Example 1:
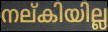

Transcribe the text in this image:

നല്കിയില്ല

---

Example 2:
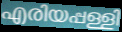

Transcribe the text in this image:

എരിയപ്പള്ളി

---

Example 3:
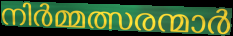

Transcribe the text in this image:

നിർമ്മത്സരന്മാർ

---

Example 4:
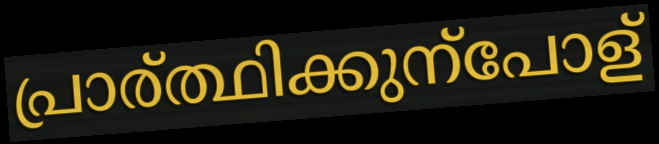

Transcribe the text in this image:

പ്രാര്ത്ഥിക്കുന്പോള്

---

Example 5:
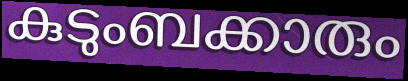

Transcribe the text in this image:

കുടുംബക്കാരും